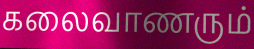
கலைவாணரும்